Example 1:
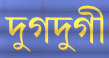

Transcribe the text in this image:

দুগদুগী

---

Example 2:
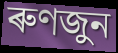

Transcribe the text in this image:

ৰুণজুন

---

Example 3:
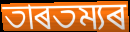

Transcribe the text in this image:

তাৰতম্যৰ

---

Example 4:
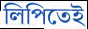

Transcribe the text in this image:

লিপিতেই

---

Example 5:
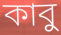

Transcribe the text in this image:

কাবু